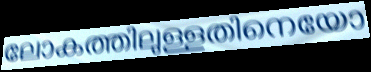
ലോകത്തിലുള്ളതിനെയോ